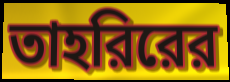
তাহরিরের